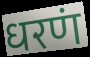
धरणं